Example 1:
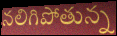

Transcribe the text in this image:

నలిగిపోతున్న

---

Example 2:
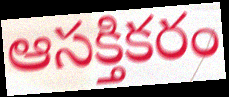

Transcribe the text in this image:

ఆసక్తికరం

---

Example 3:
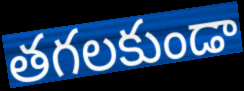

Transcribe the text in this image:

తగలకుండా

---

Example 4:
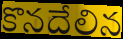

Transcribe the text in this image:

కొనదేలిన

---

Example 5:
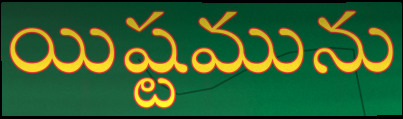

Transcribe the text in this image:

యిష్టమును